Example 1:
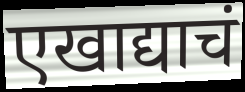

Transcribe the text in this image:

एखाद्याचं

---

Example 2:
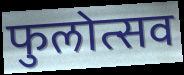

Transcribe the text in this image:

फुलोत्सव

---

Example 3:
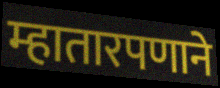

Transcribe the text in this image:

म्हातारपणाने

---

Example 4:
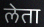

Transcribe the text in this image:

लेता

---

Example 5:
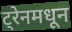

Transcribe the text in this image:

ट्रेनमधून